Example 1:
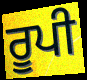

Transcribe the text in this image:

ਰੂਪੀ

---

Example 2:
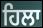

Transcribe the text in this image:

ਹਿਲਾ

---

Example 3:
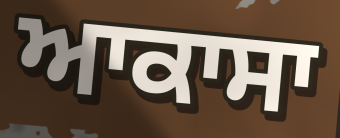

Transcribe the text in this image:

ਆਕਾਸਾ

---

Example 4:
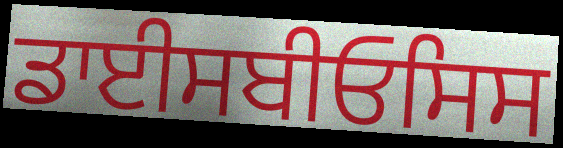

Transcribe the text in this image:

ਡਾਈਸਬੀਓਸਿਸ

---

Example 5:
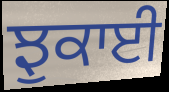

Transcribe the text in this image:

ਝੁਕਾਈ